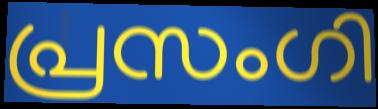
പ്രസംഗി